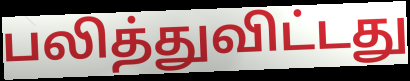
பலித்துவிட்டது